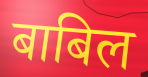
बाबिल